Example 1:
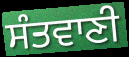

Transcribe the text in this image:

ਸੰਤਵਾਣੀ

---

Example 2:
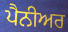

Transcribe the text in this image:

ਪੈਨੀਅਰ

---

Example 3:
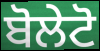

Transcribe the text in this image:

ਬੋਲੇਟੋ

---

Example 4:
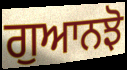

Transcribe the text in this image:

ਗੁਆਨਝੋ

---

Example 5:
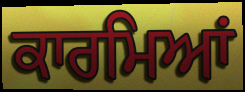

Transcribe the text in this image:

ਕਾਰਮਿਆਂ